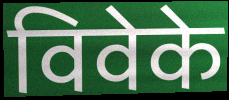
विवेके